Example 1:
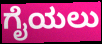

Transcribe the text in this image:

ಗೈಯಲು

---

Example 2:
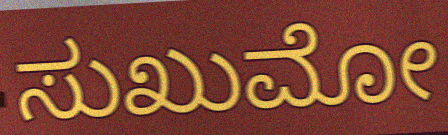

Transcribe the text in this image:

ಸುಖುಮೋ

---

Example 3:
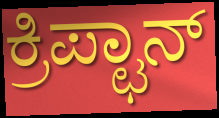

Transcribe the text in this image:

ಕ್ರಿಪ್ಟಾನ್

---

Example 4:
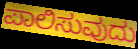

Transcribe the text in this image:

ಪಾಲಿಸುವುದು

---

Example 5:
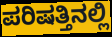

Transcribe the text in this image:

ಪರಿಷತ್ತಿನಲ್ಲಿ